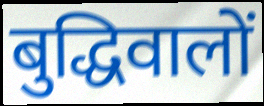
बुद्धिवालों